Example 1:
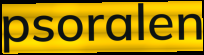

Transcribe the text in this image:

psoralen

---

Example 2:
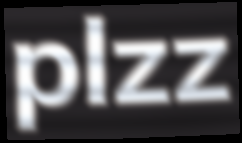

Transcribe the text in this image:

plzz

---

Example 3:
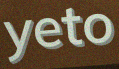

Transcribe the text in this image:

yeto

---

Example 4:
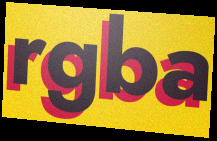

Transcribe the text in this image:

rgba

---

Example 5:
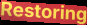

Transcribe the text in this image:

Restoring